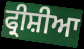
ਫ੍ਰੀਸ਼ੀਆ